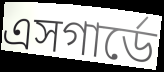
এসগার্ডে